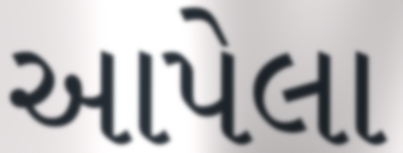
આપેલા